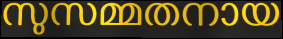
സുസമ്മതനായ